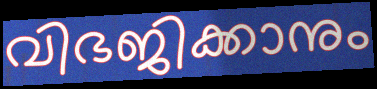
വിഭജിക്കാനും